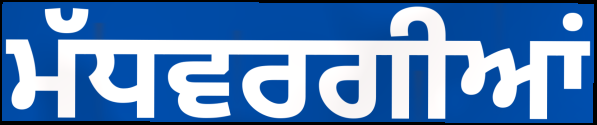
ਮੱਧਵਰਗੀਆਂ